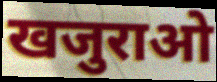
खजुराओ